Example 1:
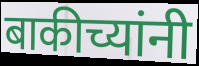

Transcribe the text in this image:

बाकीच्यांनी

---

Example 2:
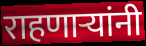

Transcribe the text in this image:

राहणार्‍यांनी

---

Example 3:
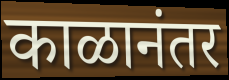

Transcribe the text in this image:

काळानंतर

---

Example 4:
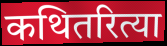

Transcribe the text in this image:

कथितरित्या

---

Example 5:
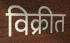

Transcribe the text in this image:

विक्रीत